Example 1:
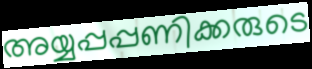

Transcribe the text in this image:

അയ്യപ്പപ്പണിക്കരുടെ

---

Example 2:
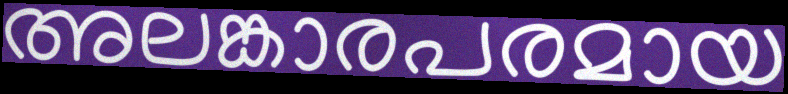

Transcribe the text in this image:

അലങ്കാരപരമായ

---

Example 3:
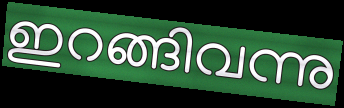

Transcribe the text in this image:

ഇറങ്ങിവന്നു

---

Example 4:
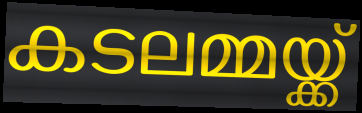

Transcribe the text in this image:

കടലമ്മയ്ക്ക്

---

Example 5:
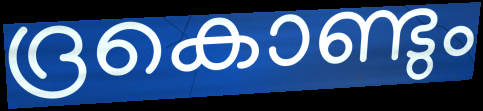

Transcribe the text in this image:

ദ്രകൊണ്ടും